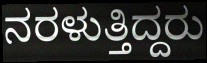
ನರಳುತ್ತಿದ್ದರು